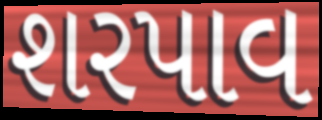
શરપાવ